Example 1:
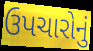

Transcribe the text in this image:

ઉપચારોનું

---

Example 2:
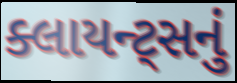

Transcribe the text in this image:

ક્લાયન્ટ્સનું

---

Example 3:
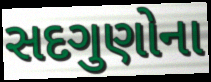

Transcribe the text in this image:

સદગુણોના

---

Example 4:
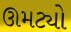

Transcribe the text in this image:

ઊમટ્યો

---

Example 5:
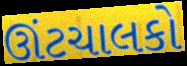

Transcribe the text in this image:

ઊંટચાલકો